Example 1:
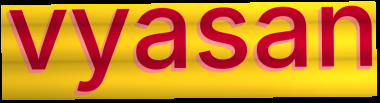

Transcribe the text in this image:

vyasan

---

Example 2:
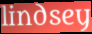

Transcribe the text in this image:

lindsey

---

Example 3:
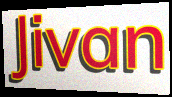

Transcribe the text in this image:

Jivan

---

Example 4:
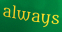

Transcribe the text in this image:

always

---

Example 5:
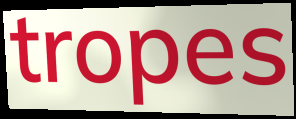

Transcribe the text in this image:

tropes